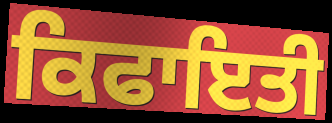
ਕਿਫਾਇਤੀ